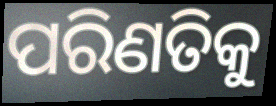
ପରିଣତିକୁ